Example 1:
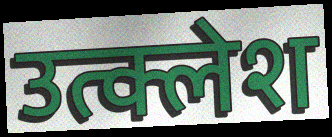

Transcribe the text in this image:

उत्क्लेश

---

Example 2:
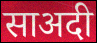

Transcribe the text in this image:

साअदी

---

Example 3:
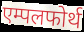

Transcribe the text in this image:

एम्पलफोर्थ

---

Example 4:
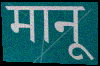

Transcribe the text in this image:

मानू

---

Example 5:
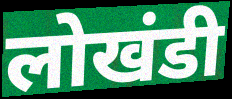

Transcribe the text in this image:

लोखंडी